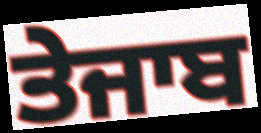
ਤੇਜਾਬ